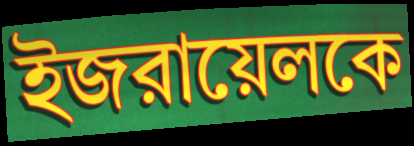
ইজরায়েলকে